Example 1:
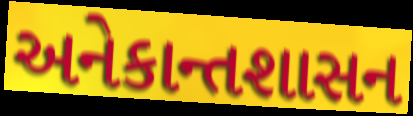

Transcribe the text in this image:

અનેકાન્તશાસન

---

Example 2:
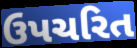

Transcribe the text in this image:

ઉપચરિત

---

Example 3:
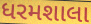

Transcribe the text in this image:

ધરમશાલા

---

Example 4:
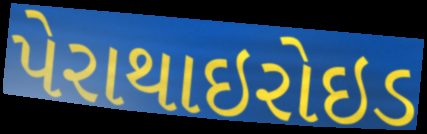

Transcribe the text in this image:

પેરાથાઇરોઇડ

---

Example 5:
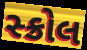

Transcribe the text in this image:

સ્ક્રોલ